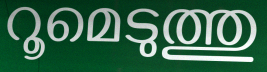
റൂമെടുത്തു